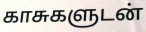
காசுகளுடன்